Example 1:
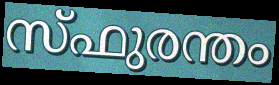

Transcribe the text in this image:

സ്ഫുരന്തം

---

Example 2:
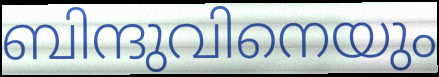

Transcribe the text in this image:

ബിന്ദുവിനെയും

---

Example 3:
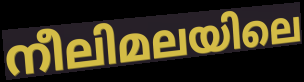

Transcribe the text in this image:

നീലിമലയിലെ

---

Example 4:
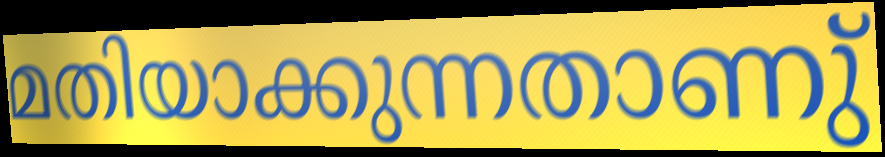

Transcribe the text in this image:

മതിയാക്കുന്നതാണു്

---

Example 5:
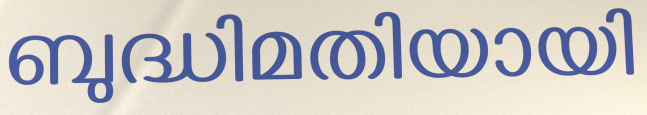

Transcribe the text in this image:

ബുദ്ധിമതിയായി